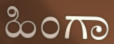
ಹಿಂಗಾ